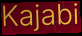
Kajabi